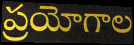
ప్రయోగాల